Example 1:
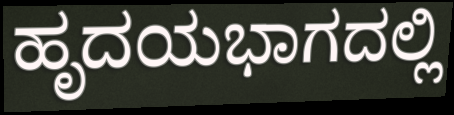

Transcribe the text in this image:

ಹೃದಯಭಾಗದಲ್ಲಿ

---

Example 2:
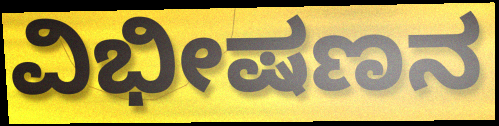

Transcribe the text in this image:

ವಿಭೀಷಣನ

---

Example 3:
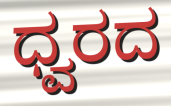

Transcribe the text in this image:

ಧ್ವರದ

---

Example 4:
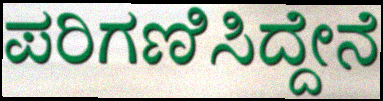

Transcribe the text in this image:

ಪರಿಗಣಿಸಿದ್ದೇನೆ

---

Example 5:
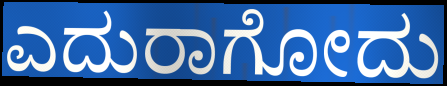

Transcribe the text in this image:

ಎದುರಾಗೋದು